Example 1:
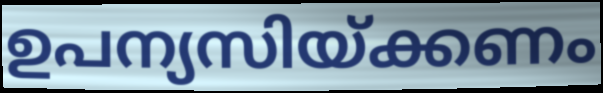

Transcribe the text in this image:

ഉപന്യസിയ്ക്കണം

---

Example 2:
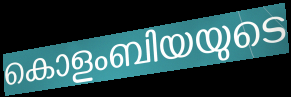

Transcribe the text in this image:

കൊളംബിയയുടെ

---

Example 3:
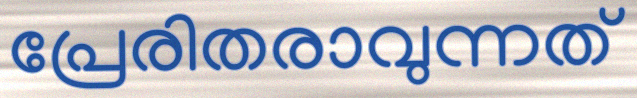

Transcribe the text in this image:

പ്രേരിതരാവുന്നത്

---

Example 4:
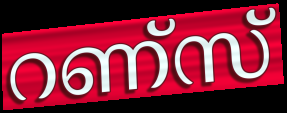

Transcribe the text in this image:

റണ്സ്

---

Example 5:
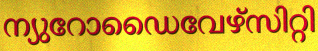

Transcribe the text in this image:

ന്യുറോഡൈവേഴ്സിറ്റി